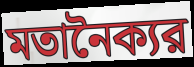
মতানৈক্যর